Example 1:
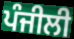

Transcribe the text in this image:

ਪੰਜੀਲੀ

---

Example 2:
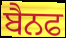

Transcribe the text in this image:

ਬੈਨਫ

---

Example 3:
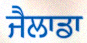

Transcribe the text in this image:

ਜੈਲਾਡਾ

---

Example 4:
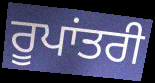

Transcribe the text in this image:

ਰੂਪਾਂਤਰੀ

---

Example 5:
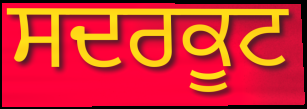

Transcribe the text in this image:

ਸਦਰਕੂਟ